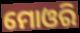
ମୋଓରି